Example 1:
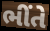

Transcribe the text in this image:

ભીંતે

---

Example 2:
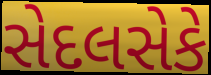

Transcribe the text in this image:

સેદલસેકે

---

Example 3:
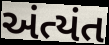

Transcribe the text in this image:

અંત્યંત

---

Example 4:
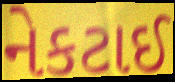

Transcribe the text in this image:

નેકટાઈ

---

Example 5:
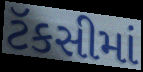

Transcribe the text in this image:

ટૅકસીમાં